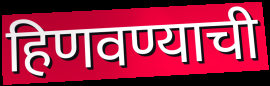
हिणवण्याची